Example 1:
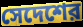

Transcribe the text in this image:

সেদেশের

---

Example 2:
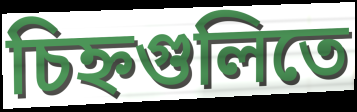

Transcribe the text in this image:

চিহ্নগুলিতে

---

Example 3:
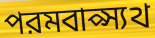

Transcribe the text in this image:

পরমবাপ্স্যথ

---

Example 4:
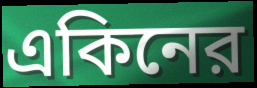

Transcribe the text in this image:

একিনের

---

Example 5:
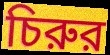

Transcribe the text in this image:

চিরুর